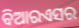
ବିଆରଏସର